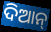
ଦିଆନ୍